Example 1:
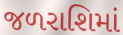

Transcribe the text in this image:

જળરાશિમાં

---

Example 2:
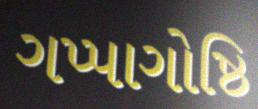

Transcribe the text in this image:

ગપ્પાગોષ્ઠિ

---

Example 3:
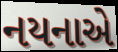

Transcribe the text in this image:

નયનાએ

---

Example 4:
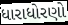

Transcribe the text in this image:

ધારાધોરણો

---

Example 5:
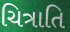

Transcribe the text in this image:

ચિત્રાતિ